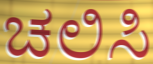
ಚಲಿಸಿ